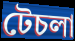
টেচলা